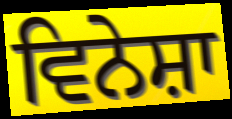
ਵਿਨੇਸ਼ਾ